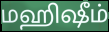
மஹிஷீம்